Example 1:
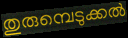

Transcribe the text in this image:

തുരുമ്പെടുക്കൽ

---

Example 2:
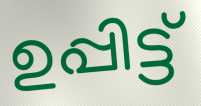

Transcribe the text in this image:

ഉപ്പിട്ട്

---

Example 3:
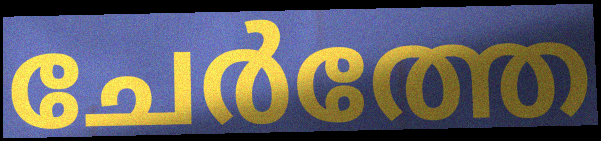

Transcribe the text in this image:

ചേർത്തേ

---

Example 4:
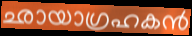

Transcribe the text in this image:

ഛായാഗ്രഹകൻ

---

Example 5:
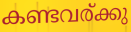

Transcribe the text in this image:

കണ്ടവര്ക്കു